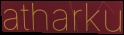
atharku